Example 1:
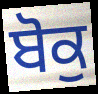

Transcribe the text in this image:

ਬੋਕੁ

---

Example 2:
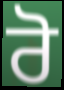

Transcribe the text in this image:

ਰੋ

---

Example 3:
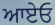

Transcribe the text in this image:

ਆਏਓ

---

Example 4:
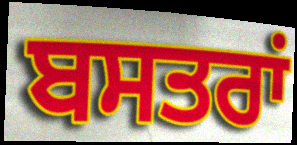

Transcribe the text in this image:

ਬਸਤਰਾਂ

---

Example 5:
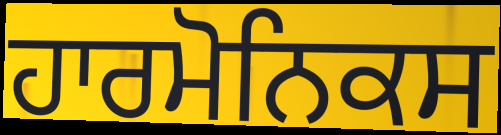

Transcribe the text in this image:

ਹਾਰਮੋਨਿਕਸ